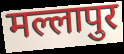
मल्लापुर